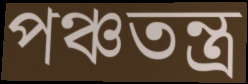
পঞ্চতন্ত্ৰ